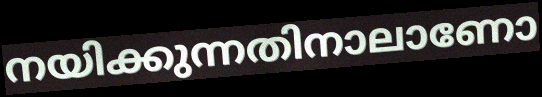
നയിക്കുന്നതിനാലാണോ